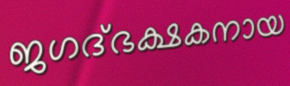
ജഗദ്ഭക്ഷകനായ